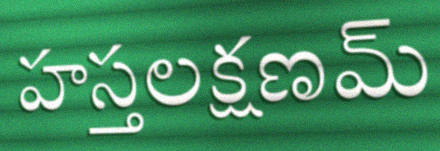
హస్తలక్షణమ్